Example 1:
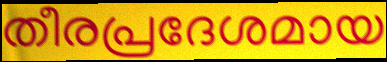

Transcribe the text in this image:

തീരപ്രദേശമായ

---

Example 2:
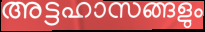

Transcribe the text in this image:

അട്ടഹാസങ്ങളും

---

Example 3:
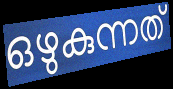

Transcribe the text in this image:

ഒഴുകുന്നത്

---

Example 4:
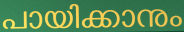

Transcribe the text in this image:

പായിക്കാനും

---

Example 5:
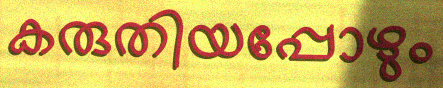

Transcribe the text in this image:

കരുതിയപ്പോഴും